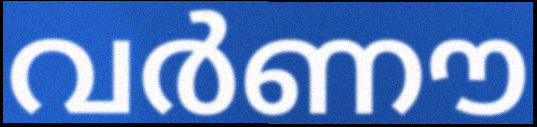
വർണൗ